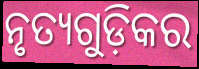
ନୃତ୍ୟଗୁଡ଼ିକର